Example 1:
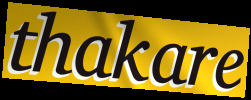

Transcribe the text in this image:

thakare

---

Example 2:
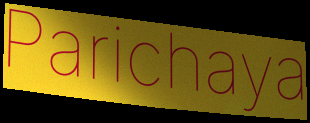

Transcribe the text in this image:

Parichaya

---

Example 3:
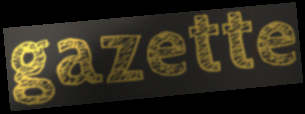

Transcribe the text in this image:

gazette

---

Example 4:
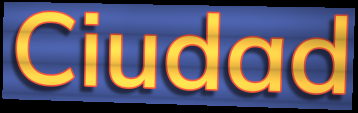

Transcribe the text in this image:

Ciudad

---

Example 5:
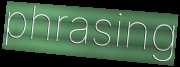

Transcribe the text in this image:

phrasing